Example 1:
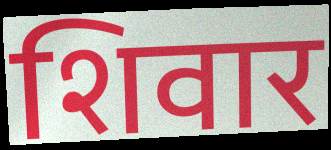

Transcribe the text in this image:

शिवार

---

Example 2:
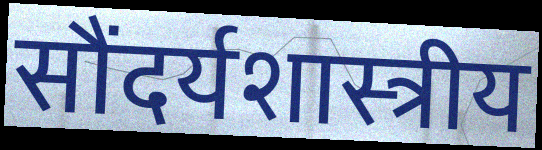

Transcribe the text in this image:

सौंदर्यशास्त्रीय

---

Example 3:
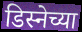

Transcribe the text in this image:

डिस्नेच्या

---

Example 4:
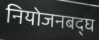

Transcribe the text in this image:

नियोजनबद्घ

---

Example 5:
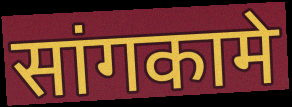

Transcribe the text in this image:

सांगकामे